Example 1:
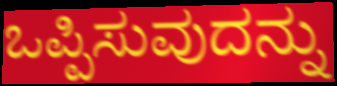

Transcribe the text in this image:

ಒಪ್ಪಿಸುವುದನ್ನು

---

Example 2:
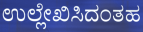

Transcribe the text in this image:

ಉಲ್ಲೇಖಿಸಿದಂತಹ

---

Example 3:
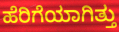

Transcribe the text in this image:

ಹೆರಿಗೆಯಾಗಿತ್ತು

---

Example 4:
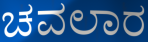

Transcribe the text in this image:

ಚವಲಾರ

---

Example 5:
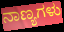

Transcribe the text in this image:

ನಾಣ್ಯಗಳು